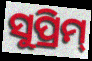
ସୁପ୍ରିମ୍